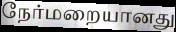
நேர்மறையானது